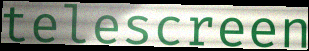
telescreen